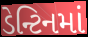
ડેન્ટિનમાં